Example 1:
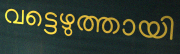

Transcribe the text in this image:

വട്ടെഴുത്തായി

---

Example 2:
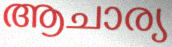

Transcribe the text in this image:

ആചാര്യ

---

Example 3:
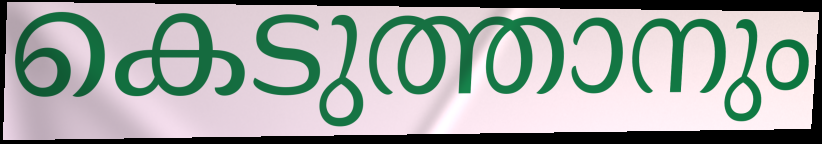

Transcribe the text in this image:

കെടുത്താനും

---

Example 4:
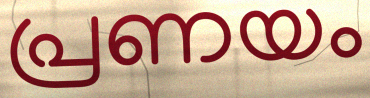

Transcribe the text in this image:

പ്രണയം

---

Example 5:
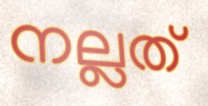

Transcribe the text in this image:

നല്ലത്